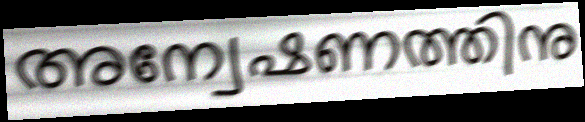
അന്വേഷണത്തിനു